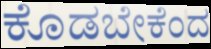
ಕೊಡಬೇಕೆಂದ